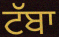
ਟੱਬਾ